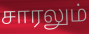
சாரலும்